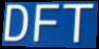
DFT